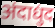
अंदाधुंद